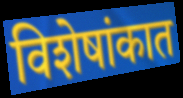
विशेषांकात